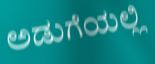
ಅಡುಗೆಯಲ್ಲಿ